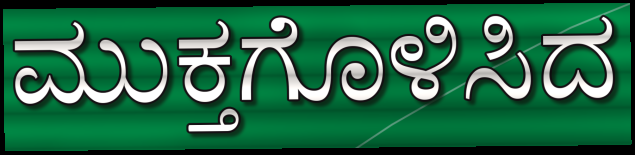
ಮುಕ್ತಗೊಳಿಸಿದ